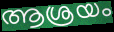
ആശ്രയം